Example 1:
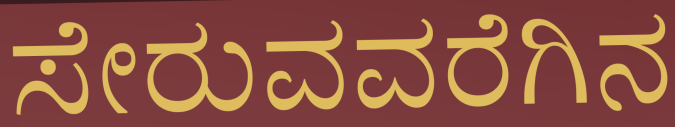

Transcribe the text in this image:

ಸೇರುವವರೆಗಿನ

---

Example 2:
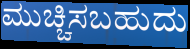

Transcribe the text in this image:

ಮುಚ್ಚಿಸಬಹುದು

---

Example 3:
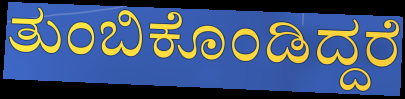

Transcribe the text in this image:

ತುಂಬಿಕೊಂಡಿದ್ದರೆ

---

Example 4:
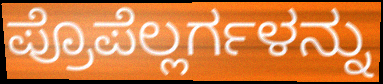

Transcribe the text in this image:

ಪ್ರೊಪೆಲ್ಲರ್ಗಳನ್ನು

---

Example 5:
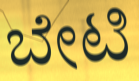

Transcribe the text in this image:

ಬೇಟಿ